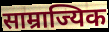
साम्राज्यिक